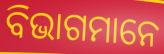
ବିଭାଗମାନେ